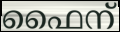
ഫൈന്